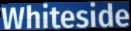
Whiteside